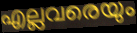
എല്ലവരെയും